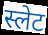
स्लेट